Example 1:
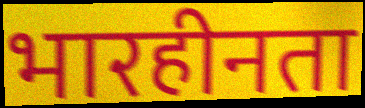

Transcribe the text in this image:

भारहीनता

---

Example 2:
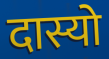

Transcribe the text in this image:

दास्यो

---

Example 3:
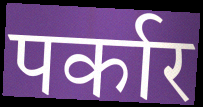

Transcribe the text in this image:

पर्कार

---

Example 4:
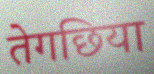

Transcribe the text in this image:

तेगछिया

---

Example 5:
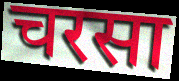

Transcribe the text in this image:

चरसा